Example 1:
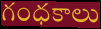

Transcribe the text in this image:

గంధకాలు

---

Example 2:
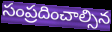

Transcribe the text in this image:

సంప్రదించాల్సిన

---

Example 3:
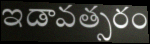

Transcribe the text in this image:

ఇడావత్సరం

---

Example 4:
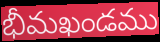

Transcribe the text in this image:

భీమఖండము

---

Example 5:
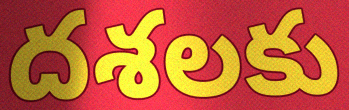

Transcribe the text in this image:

దశలకు